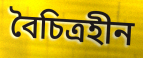
বৈচিত্রহীন